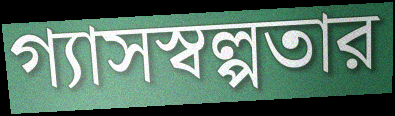
গ্যাসস্বল্পতার